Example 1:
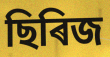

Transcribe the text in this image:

ছিৰিজ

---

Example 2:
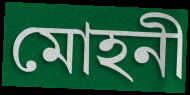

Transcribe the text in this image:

মোহনী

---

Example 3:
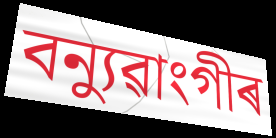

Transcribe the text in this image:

বন্যুৱাংগীৰ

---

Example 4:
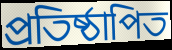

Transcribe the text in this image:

প্ৰতিষ্ঠাপিত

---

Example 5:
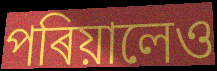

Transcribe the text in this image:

পৰিয়ালেও